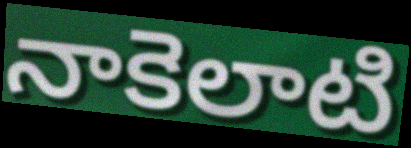
నాకెలాటి